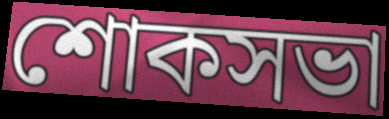
শোকসভা